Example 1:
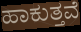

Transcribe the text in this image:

ಹಾಕುತ್ತವೆ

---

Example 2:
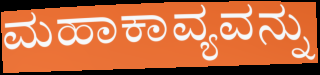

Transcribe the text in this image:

ಮಹಾಕಾವ್ಯವನ್ನು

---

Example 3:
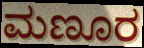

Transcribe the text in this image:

ಮಣೂರ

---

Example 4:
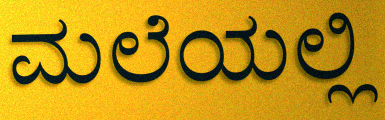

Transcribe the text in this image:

ಮಲೆಯಲ್ಲಿ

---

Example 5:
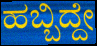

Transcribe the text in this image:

ಹಬ್ಬಿದ್ದೇ